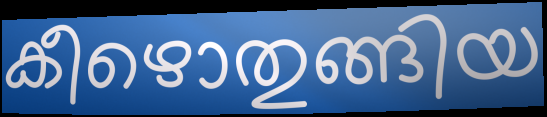
കീഴൊതുങ്ങിയ